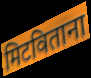
मिटविताना